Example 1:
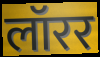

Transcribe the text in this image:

लॉरर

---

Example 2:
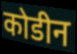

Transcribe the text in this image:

कोडीन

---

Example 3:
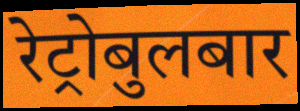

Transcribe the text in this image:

रेट्रोबुलबार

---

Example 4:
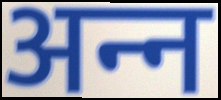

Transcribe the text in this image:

अन्न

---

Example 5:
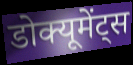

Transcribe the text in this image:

डोक्यूमेंट्स